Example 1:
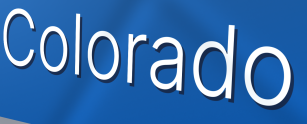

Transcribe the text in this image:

Colorado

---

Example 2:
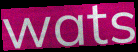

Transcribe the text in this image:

wats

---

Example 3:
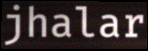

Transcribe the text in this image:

jhalar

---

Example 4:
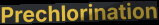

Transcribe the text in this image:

Prechlorination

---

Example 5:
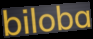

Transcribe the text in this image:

biloba